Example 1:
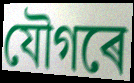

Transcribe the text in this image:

যৌগৰে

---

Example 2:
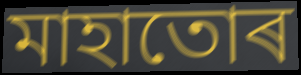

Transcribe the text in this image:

মাহাতোৰ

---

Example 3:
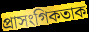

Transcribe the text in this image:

প্ৰাসংগিকতাক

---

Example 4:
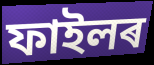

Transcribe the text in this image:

ফাইলৰ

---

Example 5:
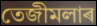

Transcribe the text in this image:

তেজীমলাৰ